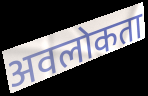
अवलोकता